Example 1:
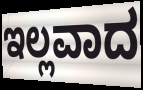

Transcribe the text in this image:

ಇಲ್ಲವಾದ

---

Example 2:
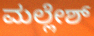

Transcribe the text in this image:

ಮಲ್ಲೇಶ್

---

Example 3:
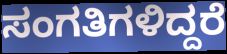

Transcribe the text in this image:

ಸಂಗತಿಗಳಿದ್ದರೆ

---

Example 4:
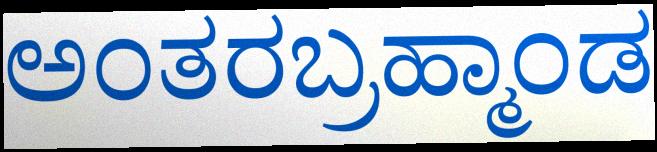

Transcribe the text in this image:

ಅಂತರಬ್ರಹ್ಮಾಂಡ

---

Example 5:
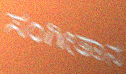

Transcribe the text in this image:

ಸಂಗೀತಾನ